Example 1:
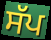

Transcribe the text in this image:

ਸੱਪ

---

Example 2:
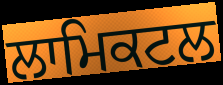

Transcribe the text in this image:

ਲਾਮਿਕਟਲ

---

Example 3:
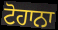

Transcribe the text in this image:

ਟੋਹਾਨਾ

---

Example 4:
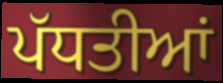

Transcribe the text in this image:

ਪੱਧਤੀਆਂ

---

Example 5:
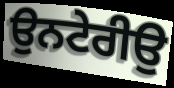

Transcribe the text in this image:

ਉਨਟੇਰੀਉ